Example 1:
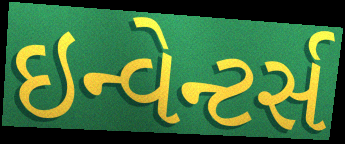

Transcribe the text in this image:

ઇન્વેન્ટર્સ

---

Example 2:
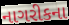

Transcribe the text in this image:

નાગરીકના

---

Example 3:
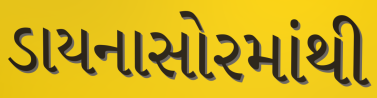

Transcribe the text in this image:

ડાયનાસોરમાંથી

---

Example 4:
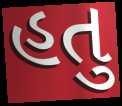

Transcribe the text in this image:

હતુ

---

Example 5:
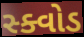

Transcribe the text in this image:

સ્ક્વોડ